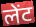
लेंट